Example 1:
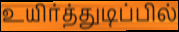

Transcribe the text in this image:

உயிர்த்துடிப்பில்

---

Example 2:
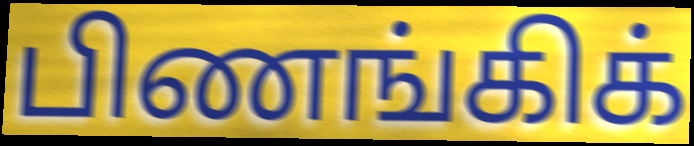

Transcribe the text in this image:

பிணங்கிக்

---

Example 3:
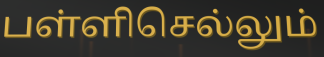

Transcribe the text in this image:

பள்ளிசெல்லும்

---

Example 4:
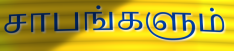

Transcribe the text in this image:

சாபங்களும்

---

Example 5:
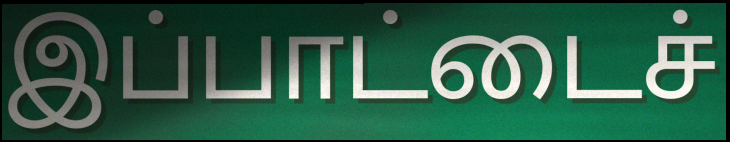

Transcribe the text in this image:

இப்பாட்டைச்